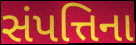
સંપત્તિના